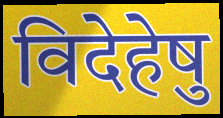
विदेहेषु